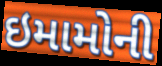
ઇમામોની